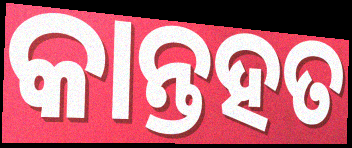
କାନ୍ତହତ